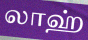
லாஹ்